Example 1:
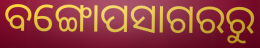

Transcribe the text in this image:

ବଙ୍ଗୋପସାଗରରୁ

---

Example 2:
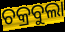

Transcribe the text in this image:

ଚକ୍ରବୁଲା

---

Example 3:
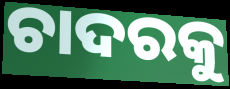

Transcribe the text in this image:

ଚାଦରକୁ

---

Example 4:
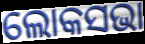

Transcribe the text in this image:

ଲୋକସଭା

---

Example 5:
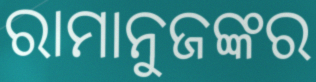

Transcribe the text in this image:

ରାମାନୁଜଙ୍କର